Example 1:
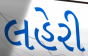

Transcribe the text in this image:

લહેરી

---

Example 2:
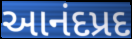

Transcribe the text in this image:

આનંદપ્રદ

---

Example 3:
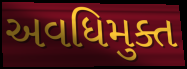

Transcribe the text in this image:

અવધિમુક્ત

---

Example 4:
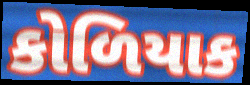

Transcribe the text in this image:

કોળિયાક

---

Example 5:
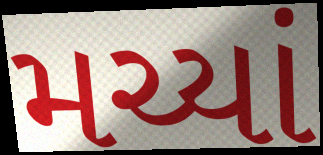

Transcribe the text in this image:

મચ્યાં